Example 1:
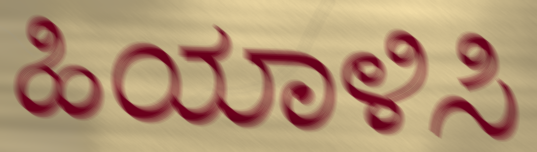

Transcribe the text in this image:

ಹಿಯಾಳಿಸಿ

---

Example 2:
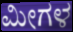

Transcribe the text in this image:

ಮೀಗಳ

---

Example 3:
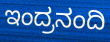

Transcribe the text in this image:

ಇಂದ್ರನಂದಿ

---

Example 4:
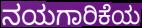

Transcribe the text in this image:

ನಯಗಾರಿಕೆಯ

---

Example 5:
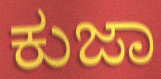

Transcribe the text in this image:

ಕುಜಾ